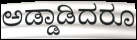
ಅಡ್ಡಾಡಿದರೂ